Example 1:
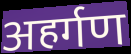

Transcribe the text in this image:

अहर्गण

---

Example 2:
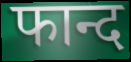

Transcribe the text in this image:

फान्द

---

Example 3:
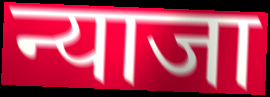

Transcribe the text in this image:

न्याजा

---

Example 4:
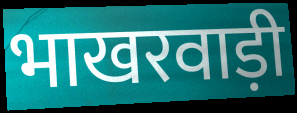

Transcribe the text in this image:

भाखरवाड़ी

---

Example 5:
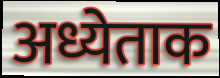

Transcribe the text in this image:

अध्येताक